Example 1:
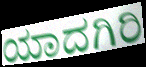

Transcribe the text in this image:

ಯಾದಗಿರಿ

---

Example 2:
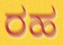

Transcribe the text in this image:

ರಹ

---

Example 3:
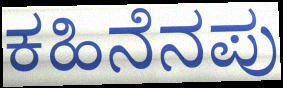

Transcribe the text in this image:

ಕಹಿನೆನಪು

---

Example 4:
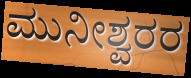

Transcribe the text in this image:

ಮುನೀಶ್ವರರ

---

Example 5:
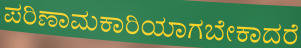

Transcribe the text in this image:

ಪರಿಣಾಮಕಾರಿಯಾಗಬೇಕಾದರೆ